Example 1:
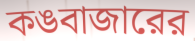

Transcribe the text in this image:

কঙবাজারের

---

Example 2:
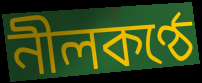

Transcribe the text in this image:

নীলকণ্ঠে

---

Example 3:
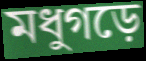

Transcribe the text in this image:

মধুগড়ে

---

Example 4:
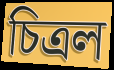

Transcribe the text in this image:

চিত্রল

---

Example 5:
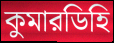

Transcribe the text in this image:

কুমারডিহি